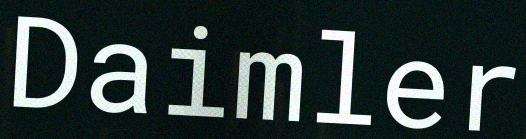
Daimler